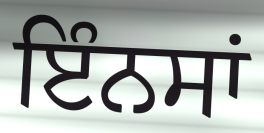
ਇੰਨਸਾਂ